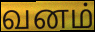
வனம்